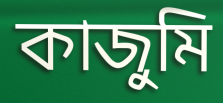
কাজুমি